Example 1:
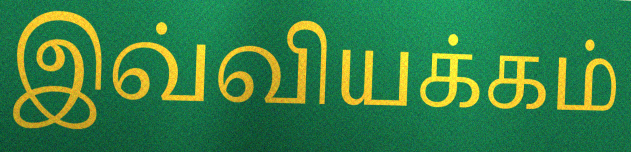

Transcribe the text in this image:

இவ்வியக்கம்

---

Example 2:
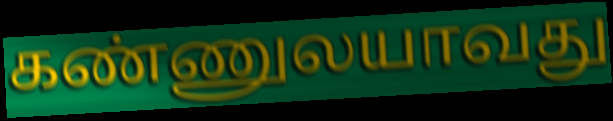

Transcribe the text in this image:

கண்ணுலயாவது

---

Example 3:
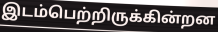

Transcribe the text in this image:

இடம்பெற்றிருக்கின்றன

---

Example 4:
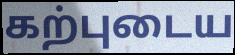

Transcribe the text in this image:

கற்புடைய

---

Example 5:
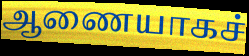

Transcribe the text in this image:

ஆணையாகச்